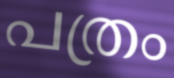
പത്രം